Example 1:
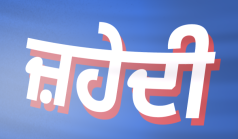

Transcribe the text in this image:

ਜ਼ਹੇਦੀ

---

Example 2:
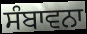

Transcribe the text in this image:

ਸੰਬਾਵਨਾ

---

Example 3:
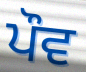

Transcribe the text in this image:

ਪੌਵ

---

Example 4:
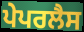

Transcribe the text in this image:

ਪੇਪਰਲੈਸ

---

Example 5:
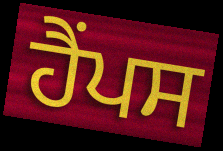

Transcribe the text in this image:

ਹੈਂਪਸ